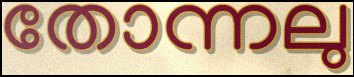
തോന്നലു